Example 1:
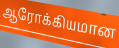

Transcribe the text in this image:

ஆரோக்கியமான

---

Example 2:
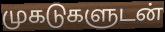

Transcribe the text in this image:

முகடுகளுடன்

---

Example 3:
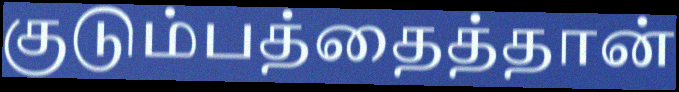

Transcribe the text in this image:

குடும்பத்தைத்தான்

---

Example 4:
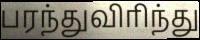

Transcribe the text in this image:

பரந்துவிரிந்து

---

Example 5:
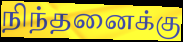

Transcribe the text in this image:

நிந்தனைக்கு